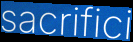
sacrifici